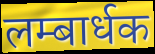
लम्बार्धक